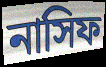
নাসিফ